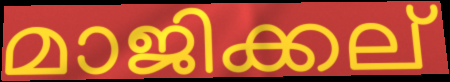
മാജിക്കല്